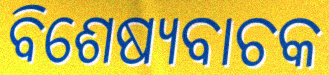
ବିଶେଷ୍ୟବାଚକ